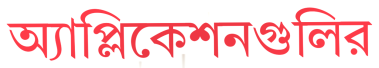
অ্যাপ্লিকেশনগুলির